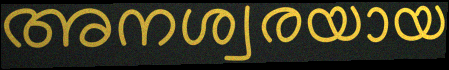
അനശ്വരയായ